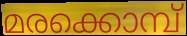
മരക്കൊമ്പ്